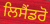
ਲਿਸੈਂਡਰੋ